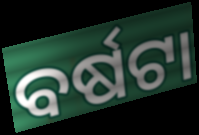
ବର୍ଷଟା